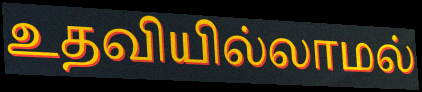
உதவியில்லாமல்